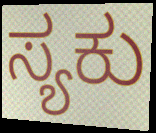
ಸ್ಯಕು